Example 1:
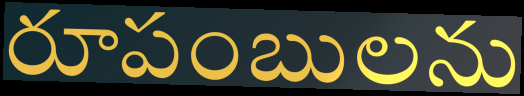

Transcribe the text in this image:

రూపంబులను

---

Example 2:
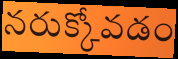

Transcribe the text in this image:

నరుక్కోవడం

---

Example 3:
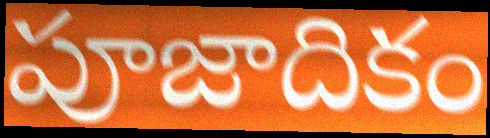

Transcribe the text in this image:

పూజాదికం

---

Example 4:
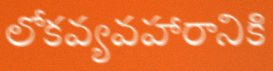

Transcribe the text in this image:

లోకవ్యవహారానికి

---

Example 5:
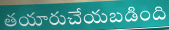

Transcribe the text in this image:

తయారుచేయబడింది